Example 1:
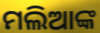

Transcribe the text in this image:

ମଲିଆଙ୍କ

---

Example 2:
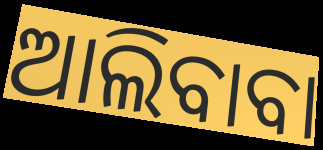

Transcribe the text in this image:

ଆଲିବାବା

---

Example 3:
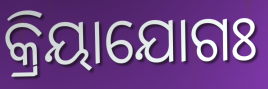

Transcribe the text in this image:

କ୍ରିୟାଯୋଗଃ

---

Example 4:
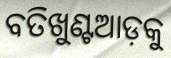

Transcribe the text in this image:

ବତିଖୁଣ୍ଟଆଡ଼କୁ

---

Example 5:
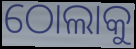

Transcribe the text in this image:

ଠୋଲାକୁ